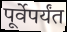
पूर्वेपर्यंत